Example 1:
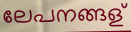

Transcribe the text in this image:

ലേപനങ്ങള്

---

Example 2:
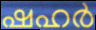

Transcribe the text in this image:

ഷഹർ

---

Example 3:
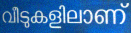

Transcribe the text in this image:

വീടുകളിലാണ്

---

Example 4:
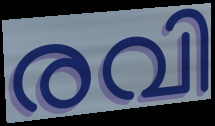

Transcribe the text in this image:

രവി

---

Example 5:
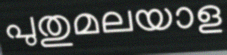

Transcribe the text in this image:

പുതുമലയാള